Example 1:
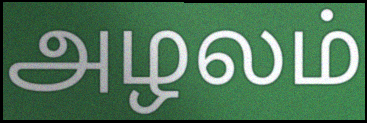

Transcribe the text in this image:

அழலம்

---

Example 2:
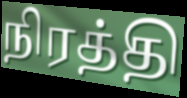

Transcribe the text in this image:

நிரத்தி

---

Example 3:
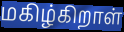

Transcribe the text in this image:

மகிழ்கிறாள்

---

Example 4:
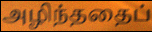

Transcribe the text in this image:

அழிந்ததைப்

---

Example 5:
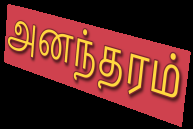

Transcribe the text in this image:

அனந்தரம்